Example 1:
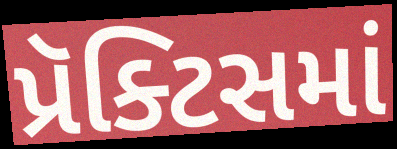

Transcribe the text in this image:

પ્રૅક્ટિસમાં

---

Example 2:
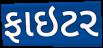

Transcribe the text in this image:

ફાઇટર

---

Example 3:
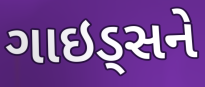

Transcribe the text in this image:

ગાઇડ્સને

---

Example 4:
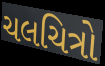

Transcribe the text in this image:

ચલચિત્રો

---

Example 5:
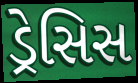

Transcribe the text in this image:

ડ્રેસિસ